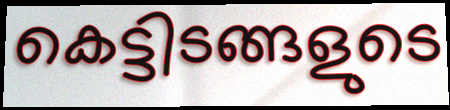
കെട്ടിടങ്ങളുടെ